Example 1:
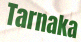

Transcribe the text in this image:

Tarnaka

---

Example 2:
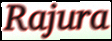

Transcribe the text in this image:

Rajura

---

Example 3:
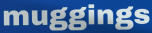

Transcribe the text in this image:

muggings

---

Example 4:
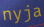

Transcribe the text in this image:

nyja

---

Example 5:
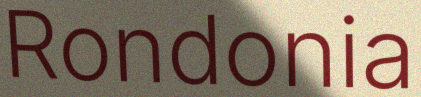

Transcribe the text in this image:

Rondonia